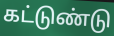
கட்டுண்டு